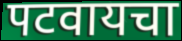
पटवायचा